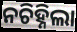
ନଚିହ୍ନିଲା